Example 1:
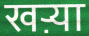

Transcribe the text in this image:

खऱ्‍या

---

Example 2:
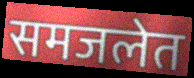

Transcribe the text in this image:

समजलेत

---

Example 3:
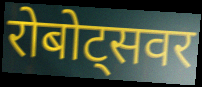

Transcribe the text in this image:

रोबोट्सवर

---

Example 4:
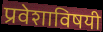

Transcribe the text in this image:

प्रवेशाविषयी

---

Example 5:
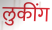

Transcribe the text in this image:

लुकींग